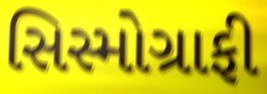
સિસ્મોગ્રાફી